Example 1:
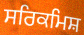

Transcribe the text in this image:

ਸਰਿਕਮਿਸ਼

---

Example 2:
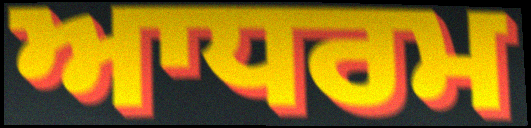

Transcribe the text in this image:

ਆਧਰਮ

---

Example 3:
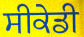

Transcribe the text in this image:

ਸੀਕੇਡੀ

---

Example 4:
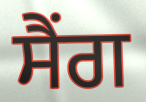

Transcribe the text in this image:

ਸੈਂਗ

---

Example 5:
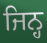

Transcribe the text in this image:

ਜਿਨ੍ਹ